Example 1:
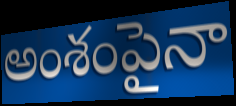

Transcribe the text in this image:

అంశంపైనా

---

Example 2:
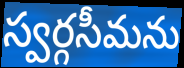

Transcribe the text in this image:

స్వర్గసీమను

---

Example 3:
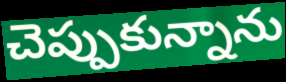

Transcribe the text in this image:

చెప్పుకున్నాను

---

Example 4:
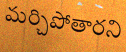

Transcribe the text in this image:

మర్చిపోతారని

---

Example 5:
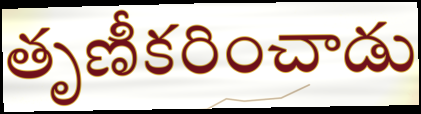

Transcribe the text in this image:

తృణీకరించాడు